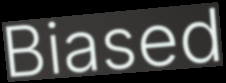
Biased